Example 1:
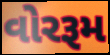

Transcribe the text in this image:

વોરરૂમ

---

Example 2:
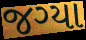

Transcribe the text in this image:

જગ્યા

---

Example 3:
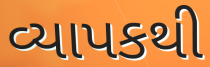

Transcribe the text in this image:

વ્યાપકથી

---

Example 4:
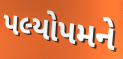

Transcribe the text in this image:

પલ્યોપમને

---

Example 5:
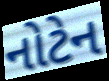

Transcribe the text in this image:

નોટેન